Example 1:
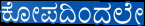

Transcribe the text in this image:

ಕೋಪದಿಂದಲೇ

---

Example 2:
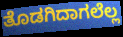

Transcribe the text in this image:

ತೊಡಗಿದಾಗಲೆಲ್ಲ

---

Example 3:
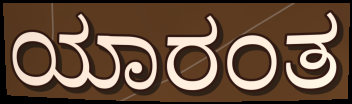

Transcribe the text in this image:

ಯಾರಂತ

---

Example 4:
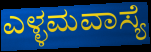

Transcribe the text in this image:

ಎಳ್ಳಮವಾಸ್ಯೆ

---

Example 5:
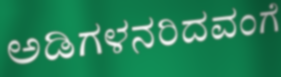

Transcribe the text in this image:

ಅಡಿಗಳನರಿದವಂಗೆ